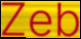
Zeb